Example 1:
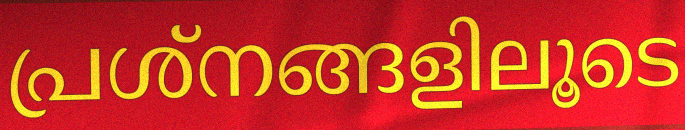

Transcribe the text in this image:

പ്രശ്നങ്ങളിലൂടെ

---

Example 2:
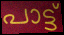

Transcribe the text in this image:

പാട്ട്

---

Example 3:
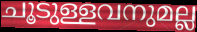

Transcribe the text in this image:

ചൂടുള്ളവനുമല്ല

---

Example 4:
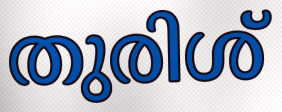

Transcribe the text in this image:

തുരിശ്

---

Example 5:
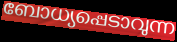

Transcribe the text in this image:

ബോധ്യപ്പെടാവുന്ന